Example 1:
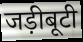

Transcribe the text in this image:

जड़ीबूटी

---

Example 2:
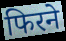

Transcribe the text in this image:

फिरने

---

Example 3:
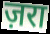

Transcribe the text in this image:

ज़रा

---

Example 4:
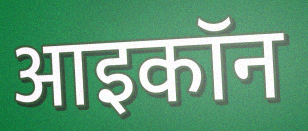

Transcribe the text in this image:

आइकॉन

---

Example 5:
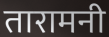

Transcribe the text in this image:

तारामनी